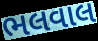
ભલવાલ